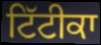
ਟਿੱਟੀਕਾ